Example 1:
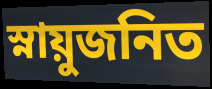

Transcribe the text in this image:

স্নায়ুজনিত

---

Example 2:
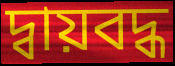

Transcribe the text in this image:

দ্বায়বদ্ধ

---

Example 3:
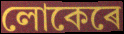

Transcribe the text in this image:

লোকেৰে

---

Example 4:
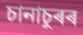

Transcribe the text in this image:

চানাচুৰৰ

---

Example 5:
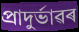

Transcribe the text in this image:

প্ৰাদুৰ্ভাৱৰ